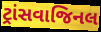
ટ્રાંસવાજિનલ